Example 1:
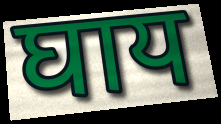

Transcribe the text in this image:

घाय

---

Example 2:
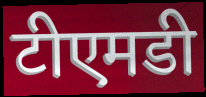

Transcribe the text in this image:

टीएमडी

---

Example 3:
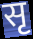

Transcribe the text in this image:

सृ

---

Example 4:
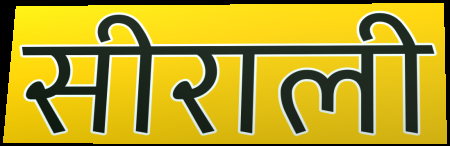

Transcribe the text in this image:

सीराली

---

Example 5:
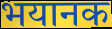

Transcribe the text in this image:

भयानक